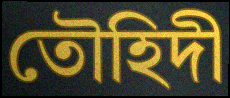
তৌহিদী